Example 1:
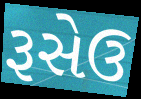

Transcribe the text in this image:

રૂસેઉ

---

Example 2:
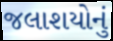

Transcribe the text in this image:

જલાશયોનું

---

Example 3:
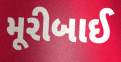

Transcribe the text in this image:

મૂરીબાઈ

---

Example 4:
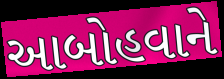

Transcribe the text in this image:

આબોહવાને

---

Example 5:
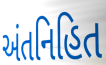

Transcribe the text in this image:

અંતનિહિત